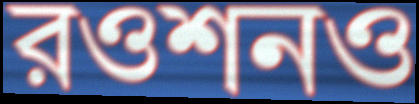
রওশনও